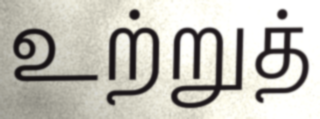
உற்றுத்